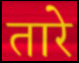
तारे